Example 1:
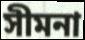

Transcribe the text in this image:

সীমনা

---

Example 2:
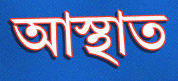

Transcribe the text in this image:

আস্থাত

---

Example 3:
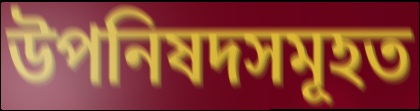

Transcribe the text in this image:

উপনিষদসমূহত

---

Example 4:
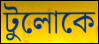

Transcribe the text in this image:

টুলোকে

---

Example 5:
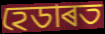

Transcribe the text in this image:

হেডাৰত